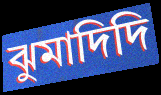
ঝুমাদিদি